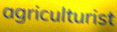
agriculturist